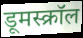
डूमस्क्रॉल